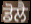
ਡੋਲੈ